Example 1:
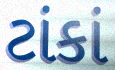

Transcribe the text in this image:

ટાંકાં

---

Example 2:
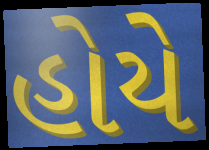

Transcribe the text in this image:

હોયે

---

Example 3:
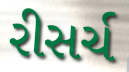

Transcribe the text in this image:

રીસર્ચ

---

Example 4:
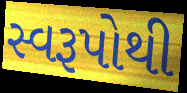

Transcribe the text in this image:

સ્વરૂપોથી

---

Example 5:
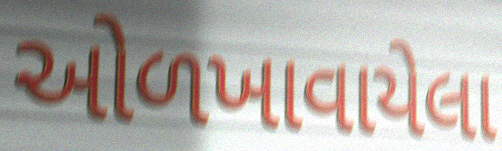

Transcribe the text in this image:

ઓળખાવાયેલા